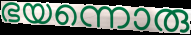
ഭയന്നൊരു